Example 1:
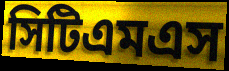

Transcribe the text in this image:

সিটিএমএস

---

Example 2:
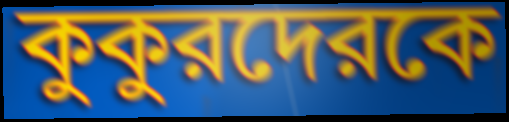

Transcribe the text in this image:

কুকুরদেরকে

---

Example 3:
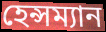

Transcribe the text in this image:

হেন্সম্যান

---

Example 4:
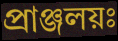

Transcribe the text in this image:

প্রাঞ্জলয়ঃ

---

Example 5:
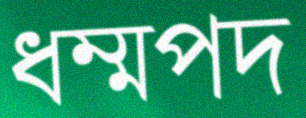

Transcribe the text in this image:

ধম্মপদ